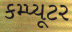
કમ્પ્યૂટર